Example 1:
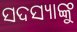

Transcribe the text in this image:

ସଦସ୍ୟାଙ୍କୁ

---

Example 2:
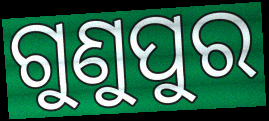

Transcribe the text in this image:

ଗୁଣୁପୁର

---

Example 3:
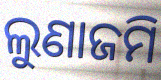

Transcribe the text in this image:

ଲୁଣାଜମି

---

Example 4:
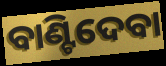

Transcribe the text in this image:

ବାଣ୍ଟିଦେବା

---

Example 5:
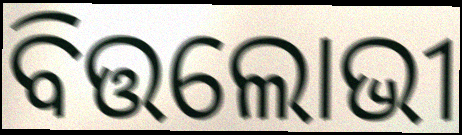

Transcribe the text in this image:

ବିତ୍ତଲୋଭୀ